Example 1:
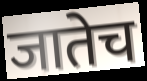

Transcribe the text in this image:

जातेच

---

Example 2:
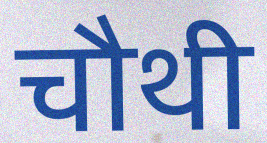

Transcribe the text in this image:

चौथी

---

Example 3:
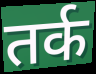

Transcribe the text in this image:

तर्क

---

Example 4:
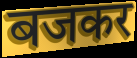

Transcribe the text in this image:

बजकर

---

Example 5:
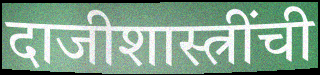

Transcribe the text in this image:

दाजीशास्त्रींची